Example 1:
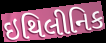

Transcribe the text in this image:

ઇથિલીનિક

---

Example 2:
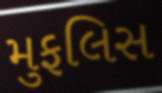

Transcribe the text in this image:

મુફલિસ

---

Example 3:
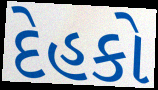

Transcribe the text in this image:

દેહકો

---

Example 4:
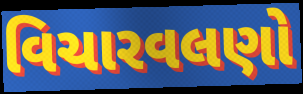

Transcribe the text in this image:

વિચારવલણો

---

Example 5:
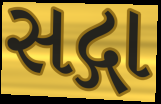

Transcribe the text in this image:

સદ્ગા